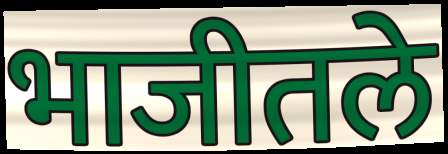
भाजीतले